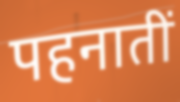
पहनातीं